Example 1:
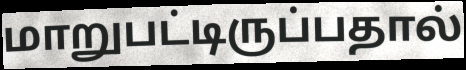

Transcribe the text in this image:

மாறுபட்டிருப்பதால்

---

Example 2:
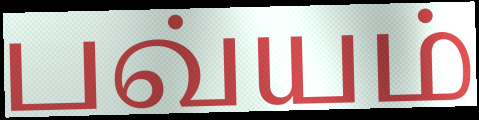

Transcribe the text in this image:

பவ்யம்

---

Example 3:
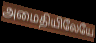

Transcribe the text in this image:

அமைதியிலேயே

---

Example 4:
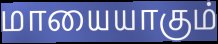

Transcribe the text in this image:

மாயையாகும்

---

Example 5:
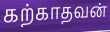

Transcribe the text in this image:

கற்காதவன்